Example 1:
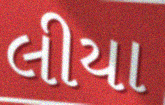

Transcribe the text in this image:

લીયા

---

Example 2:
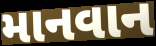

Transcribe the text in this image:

માનવાન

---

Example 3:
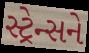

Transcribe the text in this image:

સ્ટ્રેન્સને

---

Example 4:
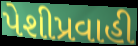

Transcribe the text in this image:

પેશીપ્રવાહી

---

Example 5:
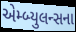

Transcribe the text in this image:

એમ્બ્યુલન્સના